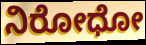
ನಿರೋಧೋ